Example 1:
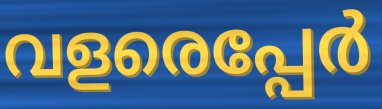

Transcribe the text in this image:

വളരെപ്പേർ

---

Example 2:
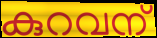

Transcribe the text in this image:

കുറവന്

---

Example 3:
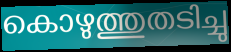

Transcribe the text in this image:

കൊഴുത്തുതടിച്ചു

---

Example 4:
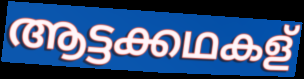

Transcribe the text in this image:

ആട്ടക്കഥകള്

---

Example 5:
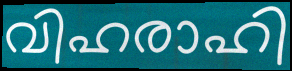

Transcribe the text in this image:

വിഹരാഹി